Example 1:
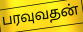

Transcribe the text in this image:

பரவுவதன்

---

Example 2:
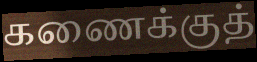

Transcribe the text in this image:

கணைக்குத்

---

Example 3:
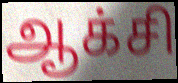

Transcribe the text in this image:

ஆக்சி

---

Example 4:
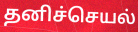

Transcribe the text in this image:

தனிச்செயல்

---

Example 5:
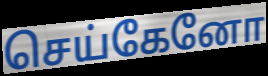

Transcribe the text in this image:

செய்கேனோ